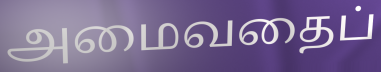
அமைவதைப்